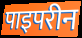
पाइपरीन